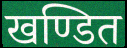
खण्डित